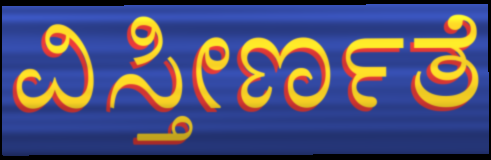
ವಿಸ್ತೀರ್ಣತೆ